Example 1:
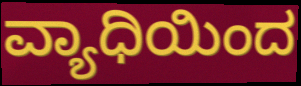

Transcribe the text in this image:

ವ್ಯಾಧಿಯಿಂದ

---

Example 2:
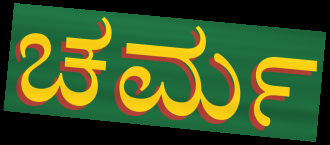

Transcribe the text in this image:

ಚರ್ಮ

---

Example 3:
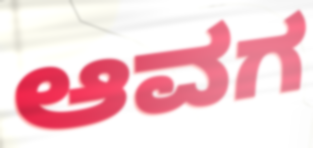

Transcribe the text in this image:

ಆವಗ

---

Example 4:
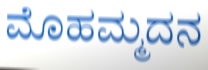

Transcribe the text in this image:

ಮೊಹಮ್ಮದನ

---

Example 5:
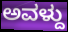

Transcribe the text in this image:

ಅವಳ್ದು